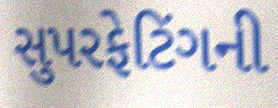
સુપરફેટિંગની